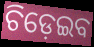
ଚିଡ଼େଇବ